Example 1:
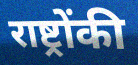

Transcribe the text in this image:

राष्ट्रोंकी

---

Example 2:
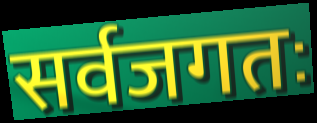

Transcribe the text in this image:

सर्वजगतः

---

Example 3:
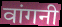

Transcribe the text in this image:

वांगनी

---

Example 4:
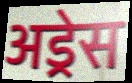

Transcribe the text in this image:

अड्रेस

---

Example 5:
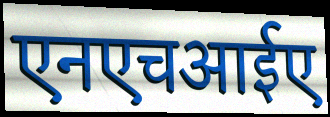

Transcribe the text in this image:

एनएचआईए